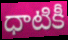
ధాటికీ